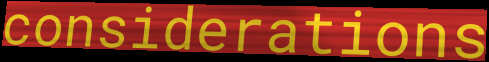
considerations